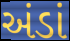
અંડાં